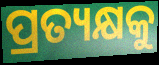
ପ୍ରତ୍ୟକ୍ଷକୁ